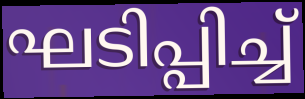
ഘടിപ്പിച്ച്